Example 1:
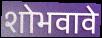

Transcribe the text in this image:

शोभवावे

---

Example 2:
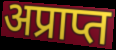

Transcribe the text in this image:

अप्राप्त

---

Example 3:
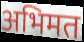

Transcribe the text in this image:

अभिमत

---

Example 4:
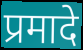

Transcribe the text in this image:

प्रमादे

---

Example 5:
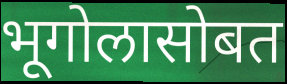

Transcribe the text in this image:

भूगोलासोबत